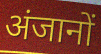
अंजानों